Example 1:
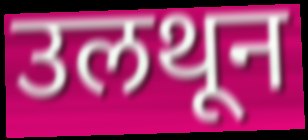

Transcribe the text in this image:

उलथून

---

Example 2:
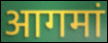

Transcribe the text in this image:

आगमां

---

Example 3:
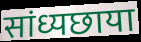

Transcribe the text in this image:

सांध्यछाया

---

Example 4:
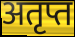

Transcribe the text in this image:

अतृप्त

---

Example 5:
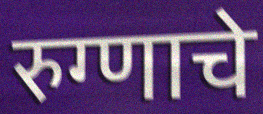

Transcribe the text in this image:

रुग्णाचे